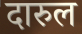
दारुल